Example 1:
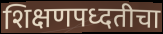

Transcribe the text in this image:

शिक्षणपध्दतीचा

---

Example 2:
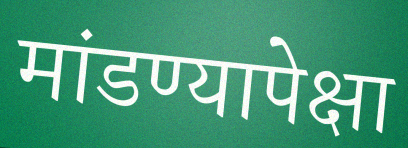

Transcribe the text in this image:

मांडण्यापेक्षा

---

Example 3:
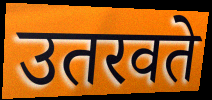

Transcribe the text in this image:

उतरवते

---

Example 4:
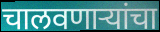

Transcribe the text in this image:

चालवणाऱ्यांचा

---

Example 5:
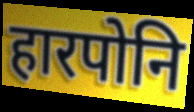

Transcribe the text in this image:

हारपोनि